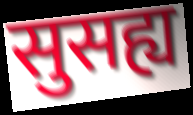
सुसह्य